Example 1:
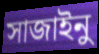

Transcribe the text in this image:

সাজাইনু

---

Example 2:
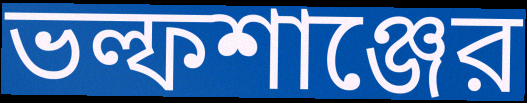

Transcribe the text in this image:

ভল্ফশাঞ্জের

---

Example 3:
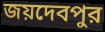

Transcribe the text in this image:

জয়দেবপুর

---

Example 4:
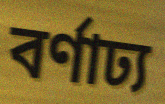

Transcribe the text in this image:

বর্ণাঢ্য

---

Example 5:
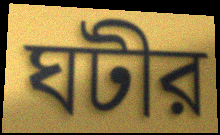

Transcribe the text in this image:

ঘটীর